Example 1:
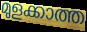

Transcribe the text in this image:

മുളക്കാത്ത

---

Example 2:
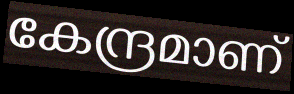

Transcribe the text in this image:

കേന്ദ്രമാണ്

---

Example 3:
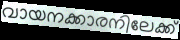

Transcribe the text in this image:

വായനക്കാരനിലേക്ക്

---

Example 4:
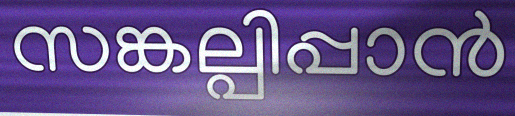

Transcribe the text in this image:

സങ്കല്പിപ്പാൻ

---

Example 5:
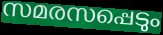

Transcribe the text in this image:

സമരസപ്പെടും